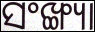
ସଂଙ୍ଖ୍ଯା